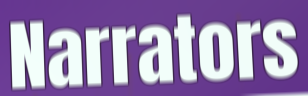
Narrators